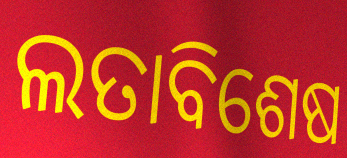
ଲତାବିଶେଷ